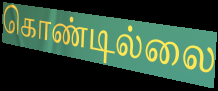
கொண்டில்லை